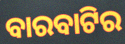
ବାରବାଟିର